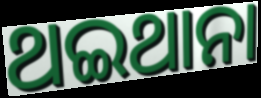
ଥଇଥାନା